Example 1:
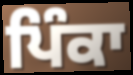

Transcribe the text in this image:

ਪਿੰਕਾ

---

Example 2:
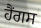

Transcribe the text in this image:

ਹੈਂਗਸ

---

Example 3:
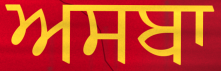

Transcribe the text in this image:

ਅਸਬਾ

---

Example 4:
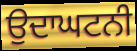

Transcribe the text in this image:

ਉਦਾਘਟਨੀ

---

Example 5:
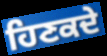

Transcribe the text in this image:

ਹਿਣਕਦੇ